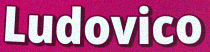
Ludovico